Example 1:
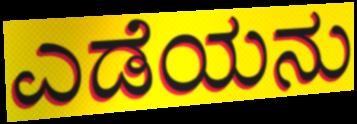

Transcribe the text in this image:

ಎಡೆಯನು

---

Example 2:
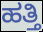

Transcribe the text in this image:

ಹತ್ತಿ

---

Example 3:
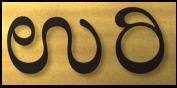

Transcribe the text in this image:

ಉರಿ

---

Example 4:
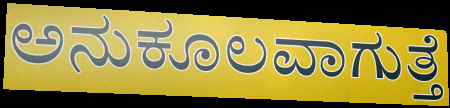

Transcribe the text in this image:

ಅನುಕೂಲವಾಗುತ್ತೆ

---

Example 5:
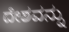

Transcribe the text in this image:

ದೇಶವನ್ನು